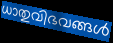
ധാതുവിഭവങ്ങൾ